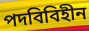
পদবিবিহীন